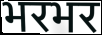
भरभर